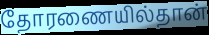
தோரணையில்தான்